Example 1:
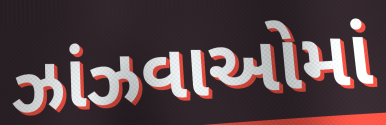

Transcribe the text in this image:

ઝાંઝવાઓમાં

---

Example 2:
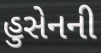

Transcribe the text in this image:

હુસેનની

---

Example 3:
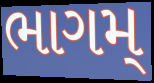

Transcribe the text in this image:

ભાગમ્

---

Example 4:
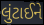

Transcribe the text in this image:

લુંટાઈને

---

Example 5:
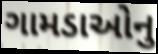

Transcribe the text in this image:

ગામડાઓનુ